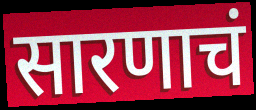
सारणाचं